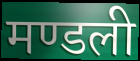
मण्डली